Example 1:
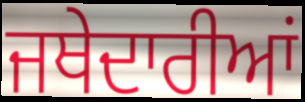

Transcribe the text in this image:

ਜਥੇਦਾਰੀਆਂ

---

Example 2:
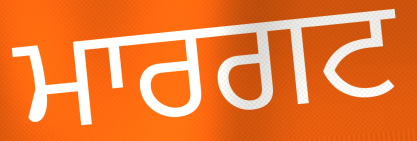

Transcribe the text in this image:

ਮਾਰਗਟ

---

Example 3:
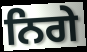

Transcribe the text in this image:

ਨਿਗੇ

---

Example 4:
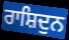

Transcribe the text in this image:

ਰਾਸ਼ਿਦੁਨ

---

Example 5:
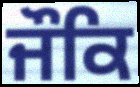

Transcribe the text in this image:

ਜੌਕਿ